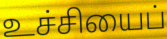
உச்சியைப்